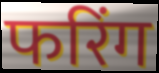
फरिंग